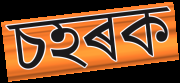
চহৰক